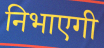
निभाएगी